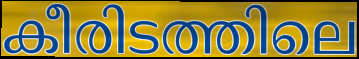
കീരിടത്തിലെ